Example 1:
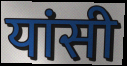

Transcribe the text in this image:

यांसी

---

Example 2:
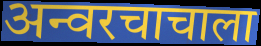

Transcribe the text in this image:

अन्वरचाचाला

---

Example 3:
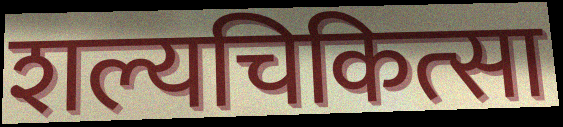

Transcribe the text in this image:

शल्‍यचिकित्‍सा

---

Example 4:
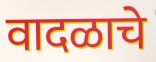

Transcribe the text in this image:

वादळाचे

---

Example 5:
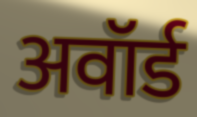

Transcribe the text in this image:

अवॉर्ड